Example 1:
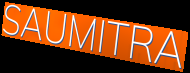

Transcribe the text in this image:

SAUMITRA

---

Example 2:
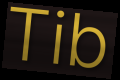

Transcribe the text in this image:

Tib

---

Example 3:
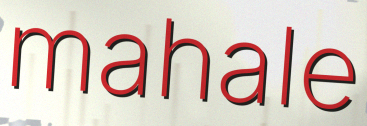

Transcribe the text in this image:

mahale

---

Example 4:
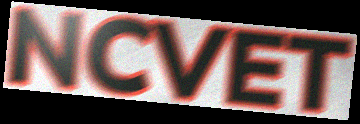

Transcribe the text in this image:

NCVET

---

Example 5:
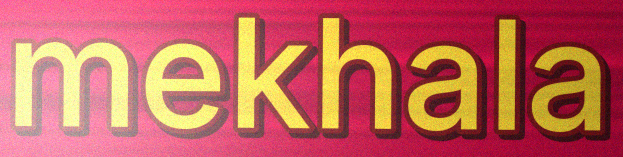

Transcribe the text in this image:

mekhala